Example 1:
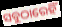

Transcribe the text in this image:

ସବୁଠାରେହିଁ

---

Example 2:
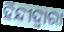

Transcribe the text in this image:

ହିନ୍ଦୀଦ୍ଵାରା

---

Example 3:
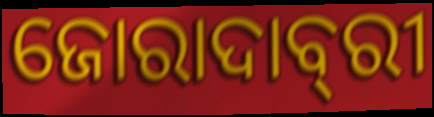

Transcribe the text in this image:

ଜୋରାଦାବ୍‌ରୀ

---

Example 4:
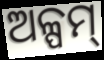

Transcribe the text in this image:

ଅଳ୍ପମ୍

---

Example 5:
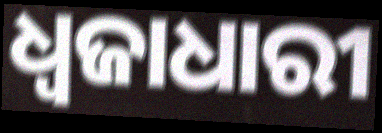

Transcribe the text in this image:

ଧ୍ଵଜାଧାରୀ